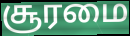
சூரமை